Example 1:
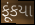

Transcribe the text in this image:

ફૂંકયા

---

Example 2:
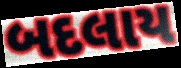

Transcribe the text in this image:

બદલાય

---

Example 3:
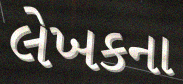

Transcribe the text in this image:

લેખકના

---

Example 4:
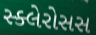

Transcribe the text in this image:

સ્ક્લેરોસસ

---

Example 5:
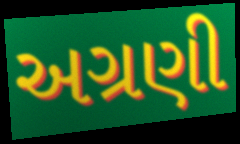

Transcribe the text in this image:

અગ્રણી